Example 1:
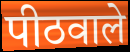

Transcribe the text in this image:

पीठवाले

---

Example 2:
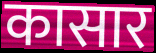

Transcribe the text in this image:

कासार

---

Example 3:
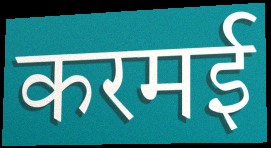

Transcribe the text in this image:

करमई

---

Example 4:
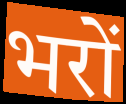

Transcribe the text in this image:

भरों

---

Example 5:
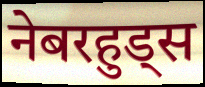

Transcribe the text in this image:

नेबरहुड्स